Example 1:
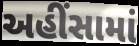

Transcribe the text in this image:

અહીંસામાં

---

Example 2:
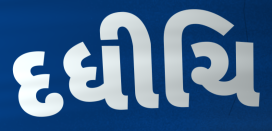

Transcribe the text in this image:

દધીચિ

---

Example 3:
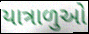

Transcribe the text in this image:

યાત્રાળુઓ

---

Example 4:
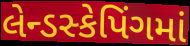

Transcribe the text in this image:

લેન્ડસ્કેપિંગમાં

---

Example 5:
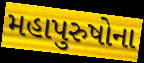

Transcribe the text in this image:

મહાપુરુષોના